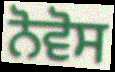
ਨੋਵੋਸ